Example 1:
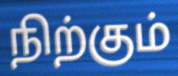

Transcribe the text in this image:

நிற்கும்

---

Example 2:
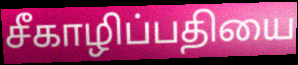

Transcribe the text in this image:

சீகாழிப்பதியை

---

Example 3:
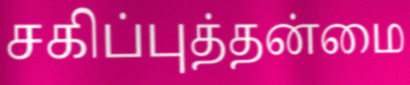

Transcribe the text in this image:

சகிப்புத்தன்மை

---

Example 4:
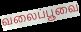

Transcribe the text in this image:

வலைப்பூவை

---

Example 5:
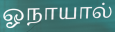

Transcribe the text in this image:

ஓநாயால்